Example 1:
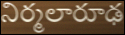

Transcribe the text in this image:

నిర్మలారూఢ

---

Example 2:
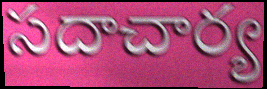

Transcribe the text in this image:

సదాచార్య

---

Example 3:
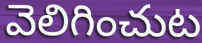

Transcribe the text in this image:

వెలిగించుట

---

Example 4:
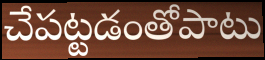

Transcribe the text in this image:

చేపట్టడంతోపాటు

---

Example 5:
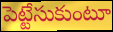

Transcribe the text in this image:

పెట్టేసుకుంటూ